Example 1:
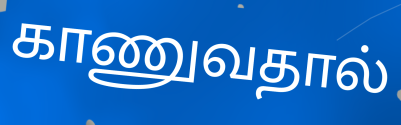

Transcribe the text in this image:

காணுவதால்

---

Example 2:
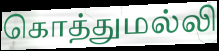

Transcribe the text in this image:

கொத்துமல்லி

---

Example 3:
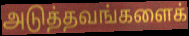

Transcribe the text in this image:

அடுத்தவங்களைக்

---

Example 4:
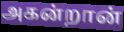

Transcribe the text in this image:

அகன்றான்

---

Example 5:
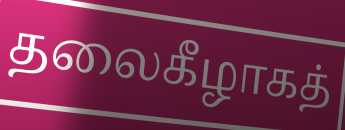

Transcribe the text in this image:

தலைகீழாகத்